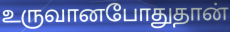
உருவானபோதுதான்